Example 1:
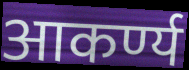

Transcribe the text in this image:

आकर्ण्य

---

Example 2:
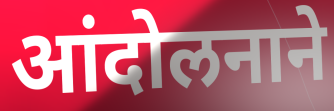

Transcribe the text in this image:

आंदोलनाने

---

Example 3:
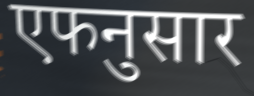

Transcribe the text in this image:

एफनुसार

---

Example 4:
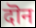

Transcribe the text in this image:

दॊन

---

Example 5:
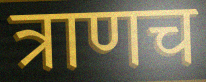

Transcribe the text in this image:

त्राणच